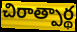
చిరాత్పార్థ